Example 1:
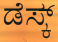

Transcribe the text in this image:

ಡೆಸ್ಕ್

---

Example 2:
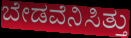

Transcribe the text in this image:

ಬೇಡವೆನಿಸಿತ್ತು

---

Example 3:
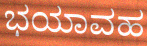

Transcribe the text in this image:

ಭಯಾವಹ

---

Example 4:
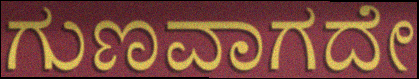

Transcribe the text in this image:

ಗುಣವಾಗದೇ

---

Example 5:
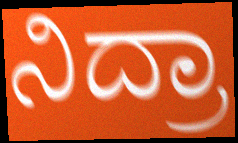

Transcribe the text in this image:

ನಿದ್ರಾ